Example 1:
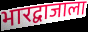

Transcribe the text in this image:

भारद्वाजाला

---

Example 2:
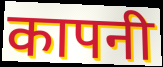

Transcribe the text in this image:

कापनी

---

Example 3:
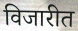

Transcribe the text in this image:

विजारीत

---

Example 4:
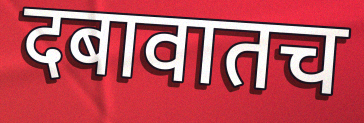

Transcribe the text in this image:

दबावातच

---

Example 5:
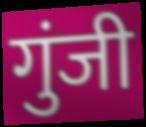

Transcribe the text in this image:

गुंजी